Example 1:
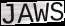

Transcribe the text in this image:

JAWS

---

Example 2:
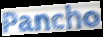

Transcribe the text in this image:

Pancho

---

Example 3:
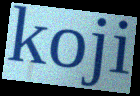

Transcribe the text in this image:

koji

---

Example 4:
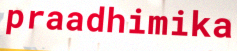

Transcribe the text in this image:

praadhimika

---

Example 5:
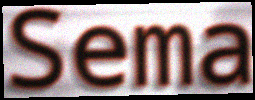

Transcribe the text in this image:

Sema